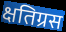
क्षतिग्रस